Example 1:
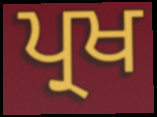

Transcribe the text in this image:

ਪ੍ਰਖ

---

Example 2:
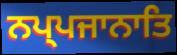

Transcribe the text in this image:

ਨਪ੍ਪਜਾਨਾਤਿ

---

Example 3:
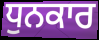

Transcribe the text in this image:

ਧੁਨਕਾਰ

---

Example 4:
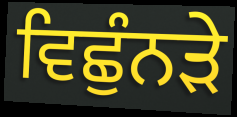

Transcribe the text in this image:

ਵਿਛੁੰਨੜੇ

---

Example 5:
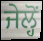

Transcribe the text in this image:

ਜੇਲ੍ਹੋਂ